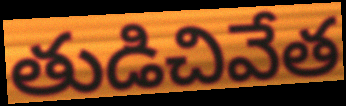
తుడిచివేత